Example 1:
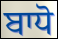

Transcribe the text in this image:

ਬਾਧੋ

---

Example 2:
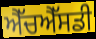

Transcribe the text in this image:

ਐੱਚਐੱਸਡੀ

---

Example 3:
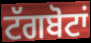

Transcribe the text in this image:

ਟੱਗਬੋਟਾਂ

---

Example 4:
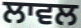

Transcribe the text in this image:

ਲਾਵਲ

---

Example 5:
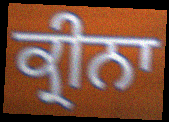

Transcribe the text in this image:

ਕ੍ਰੀਨਾ